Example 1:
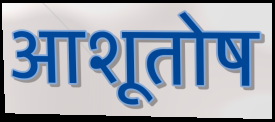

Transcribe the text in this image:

आशूतोष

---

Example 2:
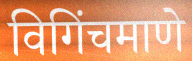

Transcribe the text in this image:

विगिंचमाणे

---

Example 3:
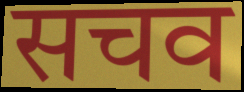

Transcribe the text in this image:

सचव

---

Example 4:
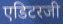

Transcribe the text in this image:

एडिटरजी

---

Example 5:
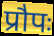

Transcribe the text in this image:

प्रौपः